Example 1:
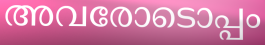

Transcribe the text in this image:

അവരോടൊപ്പം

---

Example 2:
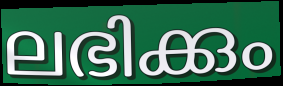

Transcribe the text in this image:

ലഭിക്കും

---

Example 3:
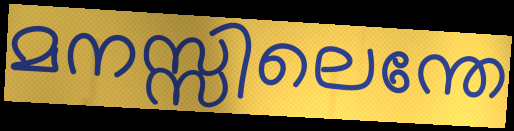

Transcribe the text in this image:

മനസ്സിലെന്തേ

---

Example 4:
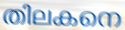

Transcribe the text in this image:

തിലകനെ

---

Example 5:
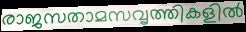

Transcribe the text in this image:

രാജസതാമസവൃത്തികളിൽ